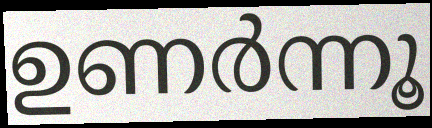
ഉണർന്നൂ